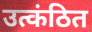
उत्कंठित